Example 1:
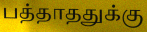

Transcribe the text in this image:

பத்தாததுக்கு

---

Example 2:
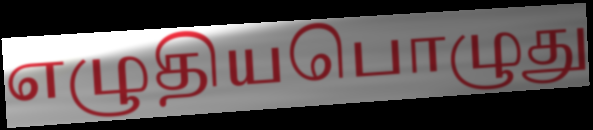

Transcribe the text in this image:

எழுதியபொழுது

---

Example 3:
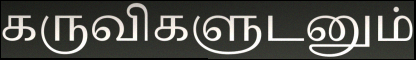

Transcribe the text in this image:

கருவிகளுடனும்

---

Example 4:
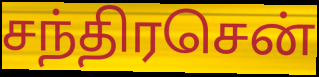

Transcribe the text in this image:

சந்திரசென்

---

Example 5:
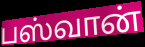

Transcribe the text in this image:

பஸ்வான்